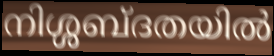
നിശ്ശബ്ദതയിൽ